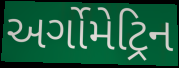
અર્ગોમેટ્રિન